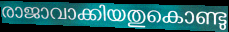
രാജാവാക്കിയതുകൊണ്ടു